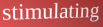
stimulating